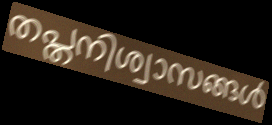
തപ്തനിശ്വാസങ്ങൾ